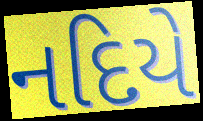
નદિયે